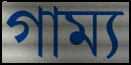
গাম্য